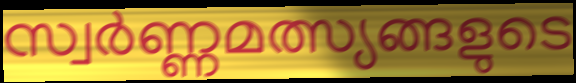
സ്വർണ്ണമത്സ്യങ്ങളുടെ